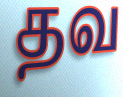
தவ